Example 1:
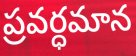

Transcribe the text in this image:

ప్రవర్ధమాన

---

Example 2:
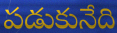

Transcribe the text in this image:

పడుకునేది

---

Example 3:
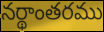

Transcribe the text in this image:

నర్థాంతరము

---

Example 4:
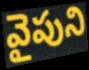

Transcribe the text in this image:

వైపుని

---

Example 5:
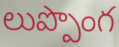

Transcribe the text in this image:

లుప్పొంగ